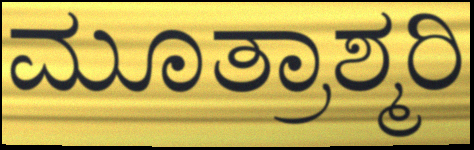
ಮೂತ್ರಾಶ್ಮರಿ